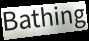
Bathing